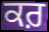
ਕਰ਼